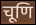
चूणि